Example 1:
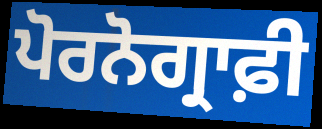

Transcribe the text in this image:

ਪੋਰਨੋਗ੍ਰਾਫ਼ੀ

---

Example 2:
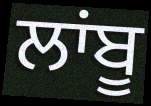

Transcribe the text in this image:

ਲਾਂਬੂ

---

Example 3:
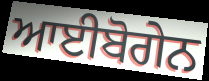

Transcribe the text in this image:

ਆਈਬੋਗੇਨ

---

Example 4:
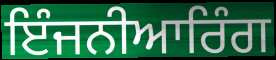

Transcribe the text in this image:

ਇੰਜਨੀਆਰਿੰਗ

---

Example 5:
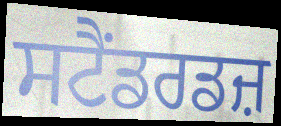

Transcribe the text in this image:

ਸਟੈਂਡਰਡਜ਼